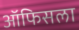
ऑफिसला